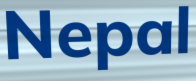
Nepal